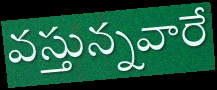
వస్తున్నవారే